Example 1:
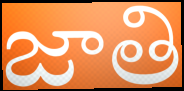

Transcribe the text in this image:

జాతి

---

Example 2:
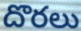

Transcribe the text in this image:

దొరలు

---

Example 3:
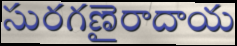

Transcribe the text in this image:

సురగణైరాదాయ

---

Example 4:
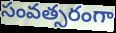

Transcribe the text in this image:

సంవత్సరంగా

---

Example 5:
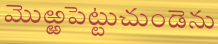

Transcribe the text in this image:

మొఱ్ఱపెట్టుచుండెను